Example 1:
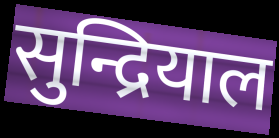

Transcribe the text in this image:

सुन्द्रियाल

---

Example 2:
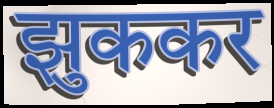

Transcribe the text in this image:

झुककर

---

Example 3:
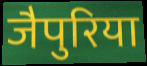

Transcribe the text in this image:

जैपुरिया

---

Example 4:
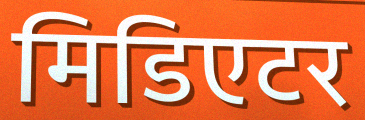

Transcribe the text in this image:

मिडिएटर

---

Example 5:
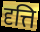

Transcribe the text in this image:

दृत्ति